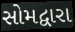
સોમદ્વારા